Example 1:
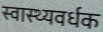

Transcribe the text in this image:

स्वास्थ्यवर्धक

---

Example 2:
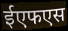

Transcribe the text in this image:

ईएफएस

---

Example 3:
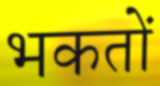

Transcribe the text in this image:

भकतों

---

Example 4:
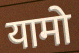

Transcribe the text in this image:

यामो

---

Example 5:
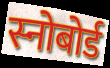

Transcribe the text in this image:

स्नोबोर्ड